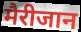
मैरीजान